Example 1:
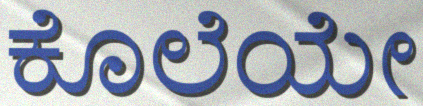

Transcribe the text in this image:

ಕೊಲೆಯೇ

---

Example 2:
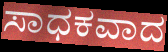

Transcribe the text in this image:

ಸಾಧಕವಾದ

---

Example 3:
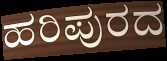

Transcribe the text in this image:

ಹರಿಪುರದ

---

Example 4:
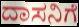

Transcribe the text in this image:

ದಾಸನಿಗೆ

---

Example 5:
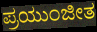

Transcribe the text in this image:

ಪ್ರಯುಂಜೀತ